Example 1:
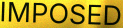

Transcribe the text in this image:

IMPOSED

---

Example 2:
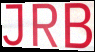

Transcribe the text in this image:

JRB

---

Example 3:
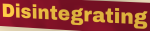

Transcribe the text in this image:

Disintegrating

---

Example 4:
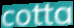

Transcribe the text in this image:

cotta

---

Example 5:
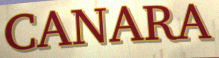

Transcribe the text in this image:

CANARA